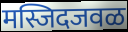
मस्जिदजवळ